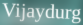
Vijaydurg